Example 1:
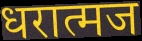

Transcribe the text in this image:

धरात्मज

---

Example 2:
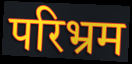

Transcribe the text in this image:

परिभ्रम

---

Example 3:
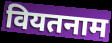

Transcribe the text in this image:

वियतनाम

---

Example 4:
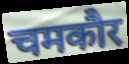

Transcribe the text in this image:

चमकौर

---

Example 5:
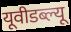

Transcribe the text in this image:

यूवीडब्ल्यू